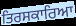
ਤਿਰਸਕਾਰਿਆ